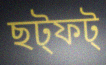
ছট্ফট্